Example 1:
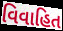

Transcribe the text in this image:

વિવાહિત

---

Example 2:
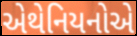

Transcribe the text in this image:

એથેનિયનોએ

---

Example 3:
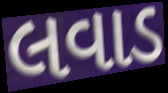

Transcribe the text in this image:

લવાડ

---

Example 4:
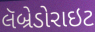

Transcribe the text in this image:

લૅબ્રેડોરાઇટ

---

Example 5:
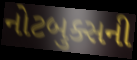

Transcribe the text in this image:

નોટબુક્સની